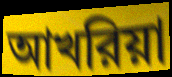
আখরিয়া